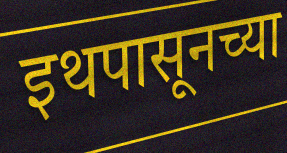
इथपासूनच्या